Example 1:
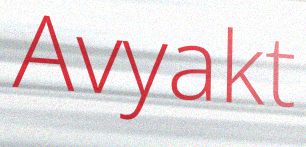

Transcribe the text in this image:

Avyakt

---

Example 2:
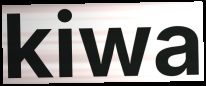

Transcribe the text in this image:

kiwa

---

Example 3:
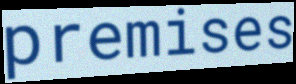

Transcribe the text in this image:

premises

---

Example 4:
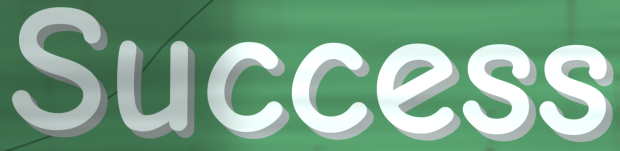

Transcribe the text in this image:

Success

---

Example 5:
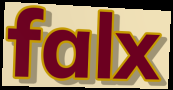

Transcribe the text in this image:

falx